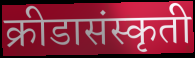
क्रीडासंस्कृती